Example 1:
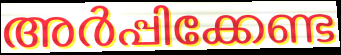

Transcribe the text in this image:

അർപ്പിക്കേണ്ട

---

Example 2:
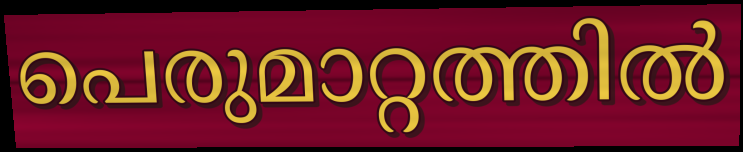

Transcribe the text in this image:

പെരുമാറ്റത്തിൽ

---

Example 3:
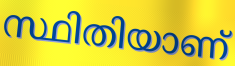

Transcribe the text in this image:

സ്ഥിതിയാണ്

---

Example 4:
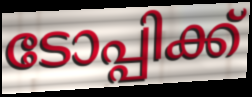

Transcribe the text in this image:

ടോപ്പിക്ക്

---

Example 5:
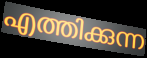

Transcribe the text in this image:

എത്തിക്കുന്ന